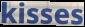
kisses